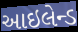
આઇલેન્ડ